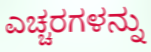
ಎಚ್ಚರಗಳನ್ನು